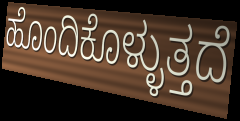
ಹೊಂದಿಕೊಳ್ಳುತ್ತದೆ